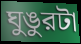
ঘুঙুরটা